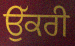
ਉੱਕਰੀ